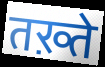
तख़्ते